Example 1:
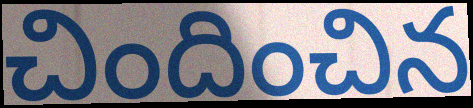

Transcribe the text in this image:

చిందించిన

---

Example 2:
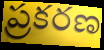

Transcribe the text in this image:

ప్రకరణ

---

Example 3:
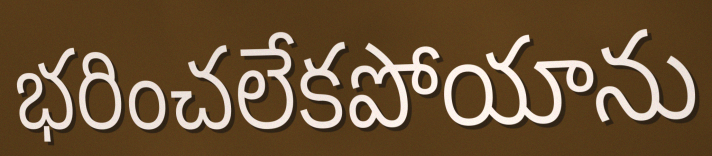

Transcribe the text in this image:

భరించలేకపోయాను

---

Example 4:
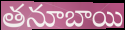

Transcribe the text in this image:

తనూబాయి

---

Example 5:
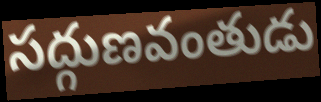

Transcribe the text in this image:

సద్గుణవంతుడు